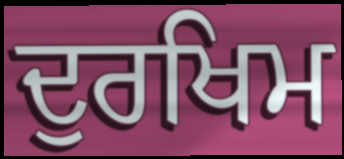
ਦੁਰਖਿਮ